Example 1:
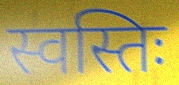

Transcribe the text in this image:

स्वस्तिः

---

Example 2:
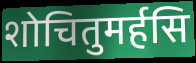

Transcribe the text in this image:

शोचितुमर्हसि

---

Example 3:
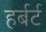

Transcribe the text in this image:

हर्बर्ट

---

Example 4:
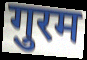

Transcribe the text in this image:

गुरम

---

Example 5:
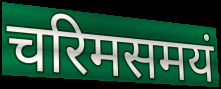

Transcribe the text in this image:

चरिमसमयं